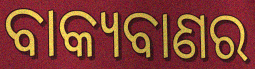
ବାକ୍ୟବାଣର